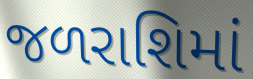
જળરાશિમાં